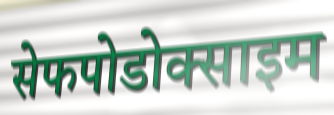
सेफपोडोक्साइम